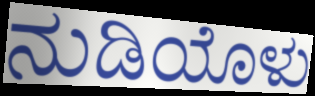
ನುಡಿಯೊಳು